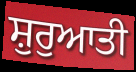
ਸ਼ੁਰੁਆਤੀ